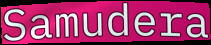
Samudera